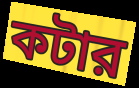
কটার